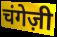
चंगेज़ी